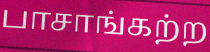
பாசாங்கற்ற